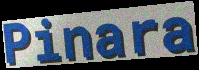
Pinara